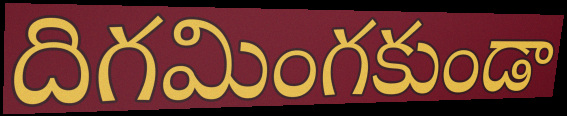
దిగమింగకుండా